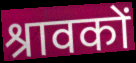
श्रावकों